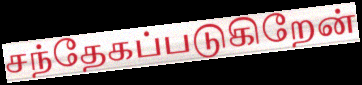
சந்தேகப்படுகிறேன்